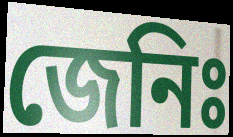
জেনিঃ